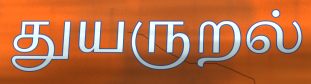
துயருறல்